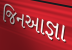
જિનઆજ્ઞા